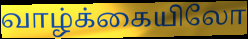
வாழ்க்கையிலோ